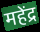
महेंद्र